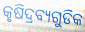
କୃଷିଦ୍ରବ୍ୟଗୁଡିକ